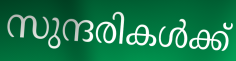
സുന്ദരികൾക്ക്